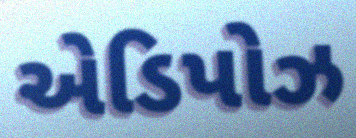
એડિપોઝ